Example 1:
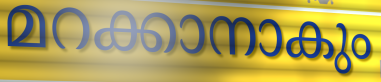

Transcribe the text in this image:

മറക്കാനാകും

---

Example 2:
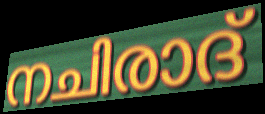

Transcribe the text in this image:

നചിരാദ്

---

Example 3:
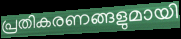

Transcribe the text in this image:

പ്രതികരണങ്ങളുമായി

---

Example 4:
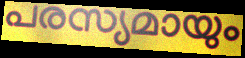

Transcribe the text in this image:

പരസ്യമായും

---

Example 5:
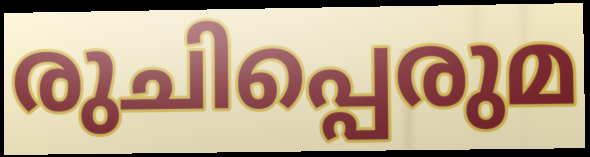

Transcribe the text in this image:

രുചിപ്പെരുമ